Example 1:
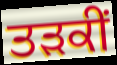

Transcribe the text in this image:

ਤੜਕੀਂ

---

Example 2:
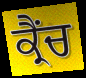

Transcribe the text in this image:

ਕ੍ਰੈਂਚ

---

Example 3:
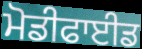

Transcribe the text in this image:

ਮੋਡੀਫਾਈਡ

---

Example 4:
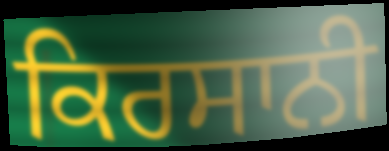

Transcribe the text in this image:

ਕਿਰਸਾਨੀ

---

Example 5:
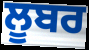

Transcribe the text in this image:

ਲੂਬਰ